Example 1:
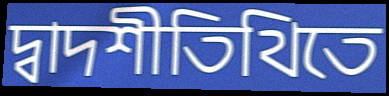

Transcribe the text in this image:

দ্বাদশীতিথিতে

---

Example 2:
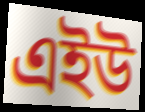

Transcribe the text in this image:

এইউ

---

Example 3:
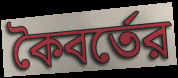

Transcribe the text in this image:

কৈবর্তের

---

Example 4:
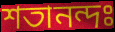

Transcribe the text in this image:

শতানন্দঃ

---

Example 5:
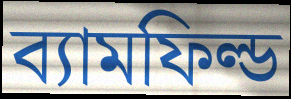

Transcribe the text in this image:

ব্যামফিল্ড